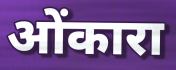
ओंकारा